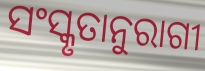
ସଂସ୍କୃତାନୁରାଗୀ